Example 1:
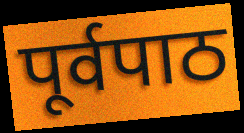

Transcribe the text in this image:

पूर्वपाठ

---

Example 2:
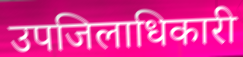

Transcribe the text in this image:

उपजिलाधिकारी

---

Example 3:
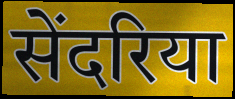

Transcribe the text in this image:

सेंदरिया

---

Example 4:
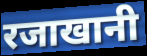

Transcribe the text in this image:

रजाखानी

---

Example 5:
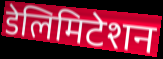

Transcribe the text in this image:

डेलिमिटेशन